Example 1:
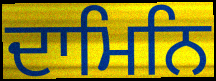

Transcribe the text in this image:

ਦਾਮਿਨਿ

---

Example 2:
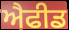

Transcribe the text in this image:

ਐਫੀਡ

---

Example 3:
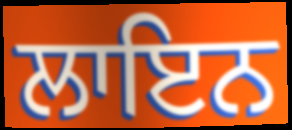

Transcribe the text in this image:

ਲਾਇਨ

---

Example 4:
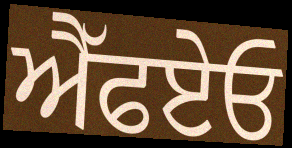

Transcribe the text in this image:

ਐੱਫਏਓ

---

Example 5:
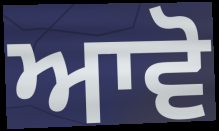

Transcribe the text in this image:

ਆਵੋ